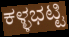
ಕಳ್ಳಭಟ್ಟಿ